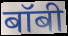
बॉबी